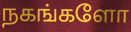
நகங்களோ